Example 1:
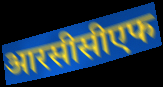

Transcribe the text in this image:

आरसीसीएफ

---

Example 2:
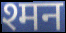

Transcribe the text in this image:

श्मन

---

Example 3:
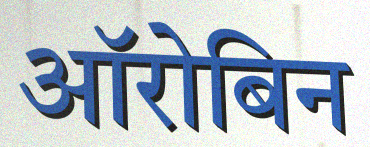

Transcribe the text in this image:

ऑरोबिन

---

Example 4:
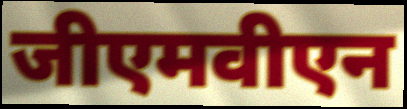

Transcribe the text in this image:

जीएमवीएन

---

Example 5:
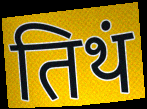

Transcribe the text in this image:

तिथं